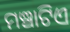
ମଞ୍ଚାଟିଏ